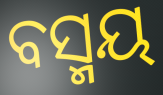
ବସ୍ମୟ